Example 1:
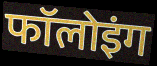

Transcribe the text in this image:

फॉलोइंग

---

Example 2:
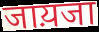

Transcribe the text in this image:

जाय़जा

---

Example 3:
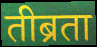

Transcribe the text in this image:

तीब्रता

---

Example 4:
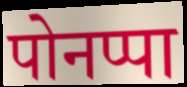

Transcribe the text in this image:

पोनप्‍पा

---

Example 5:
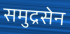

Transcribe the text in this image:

समुद्रसेन